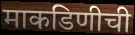
माकडिणीची